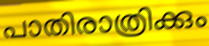
പാതിരാത്രിക്കും